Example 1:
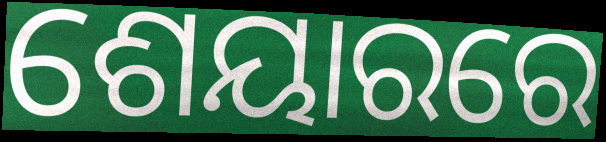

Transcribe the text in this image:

ଶେୟାରରେ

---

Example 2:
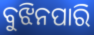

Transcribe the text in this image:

ବୁଝିନପାରି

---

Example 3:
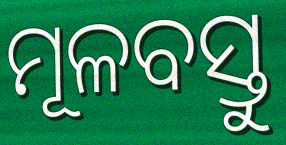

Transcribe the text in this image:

ମୂଳବସ୍ତୁ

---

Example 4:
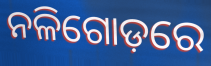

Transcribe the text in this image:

ନଳିଗୋଡ଼ରେ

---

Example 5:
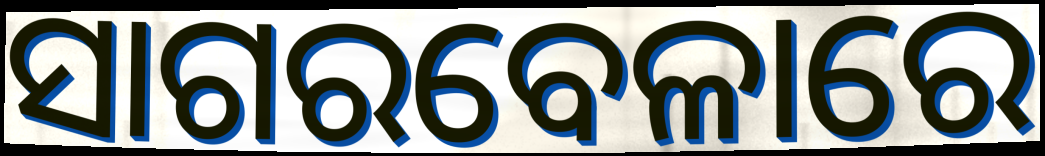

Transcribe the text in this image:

ସାଗରବେଳାରେ